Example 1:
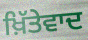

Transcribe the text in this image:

ਖ਼ਿੱਤੇਵਾਦ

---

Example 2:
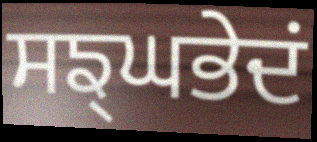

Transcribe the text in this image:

ਸਙ੍ਘਭੇਦਂ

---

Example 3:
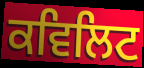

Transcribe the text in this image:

ਕਵਿਲਿਟ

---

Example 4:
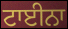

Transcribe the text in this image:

ਟਾਈਨਾ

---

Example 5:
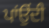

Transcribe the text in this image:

ਪਾਂਉਂਦੀ